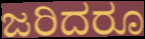
ಜರಿದರೂ